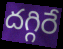
దగ్గిరే